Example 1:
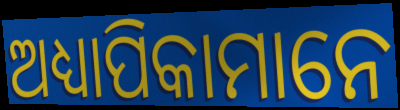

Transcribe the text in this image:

ଅଧ୍ୟାପିକାମାନେ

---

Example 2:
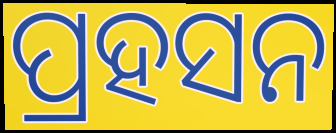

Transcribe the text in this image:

ପ୍ରହସନ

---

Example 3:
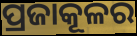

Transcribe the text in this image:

ପ୍ରଜାକୂଳର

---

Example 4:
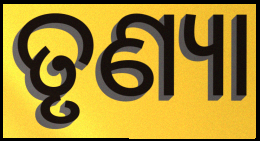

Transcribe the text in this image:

ତୃଣ୍ୟା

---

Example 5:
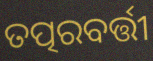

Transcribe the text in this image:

ତତ୍ପରବର୍ତ୍ତୀ